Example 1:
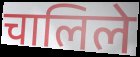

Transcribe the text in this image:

चालिले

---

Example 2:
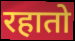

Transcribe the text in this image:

रहातो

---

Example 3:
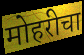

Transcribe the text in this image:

मोहरीचा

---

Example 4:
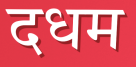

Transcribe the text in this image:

दधम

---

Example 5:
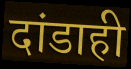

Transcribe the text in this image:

दांडाही